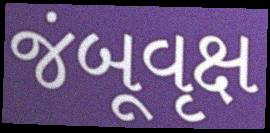
જંબૂવૃક્ષ